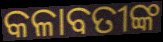
କଳାବତୀଙ୍କ